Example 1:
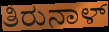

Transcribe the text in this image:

ತಿರುನಾಳ್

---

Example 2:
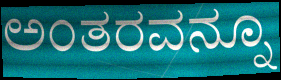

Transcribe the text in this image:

ಅಂತರವನ್ನೂ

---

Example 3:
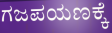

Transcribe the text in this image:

ಗಜಪಯಣಕ್ಕೆ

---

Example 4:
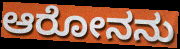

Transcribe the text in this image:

ಆರೋನನು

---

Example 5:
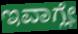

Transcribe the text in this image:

ಇವಾಗ್ಲೇ